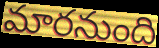
మారనుంది